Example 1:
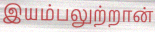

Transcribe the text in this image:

இயம்பலுற்றான்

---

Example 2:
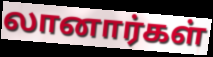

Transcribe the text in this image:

லானார்கள்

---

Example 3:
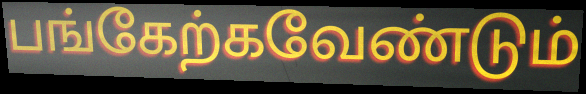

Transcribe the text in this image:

பங்கேற்கவேண்டும்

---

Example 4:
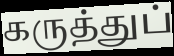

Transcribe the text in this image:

கருத்துப்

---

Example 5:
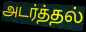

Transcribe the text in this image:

அடர்த்தல்